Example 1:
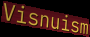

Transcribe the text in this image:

Visnuism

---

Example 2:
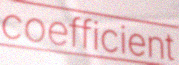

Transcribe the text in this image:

coefficient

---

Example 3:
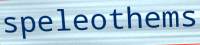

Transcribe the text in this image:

speleothems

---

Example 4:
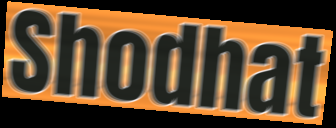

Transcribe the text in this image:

Shodhat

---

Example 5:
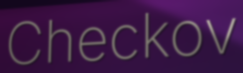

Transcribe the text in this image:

Checkov